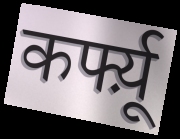
कर्फ्य़ू